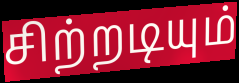
சிற்றடியும்